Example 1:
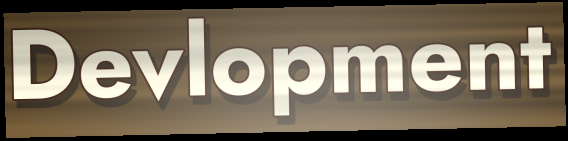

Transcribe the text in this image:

Devlopment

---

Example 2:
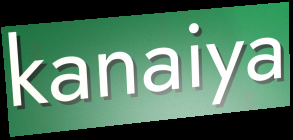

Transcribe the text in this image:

kanaiya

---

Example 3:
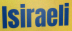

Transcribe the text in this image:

Isiraeli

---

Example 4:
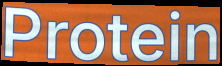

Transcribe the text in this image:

Protein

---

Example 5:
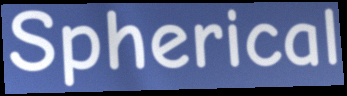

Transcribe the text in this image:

Spherical